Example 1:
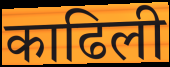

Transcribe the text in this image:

काढिली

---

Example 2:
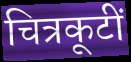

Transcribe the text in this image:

चित्रकूटीं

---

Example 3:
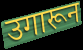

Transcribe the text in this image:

उगारून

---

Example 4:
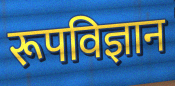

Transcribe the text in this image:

रूपविज्ञान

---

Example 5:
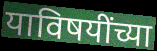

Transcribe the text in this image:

याविषयींच्या